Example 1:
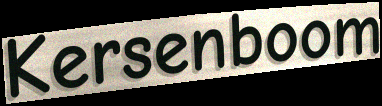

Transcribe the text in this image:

Kersenboom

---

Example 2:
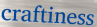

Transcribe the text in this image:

craftiness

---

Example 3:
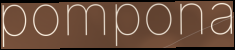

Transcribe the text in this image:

pompona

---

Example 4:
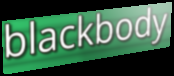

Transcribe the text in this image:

blackbody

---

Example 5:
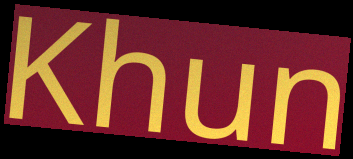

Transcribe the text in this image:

Khun